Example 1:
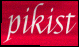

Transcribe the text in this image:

pikist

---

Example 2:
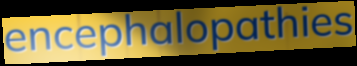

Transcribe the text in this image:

encephalopathies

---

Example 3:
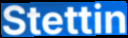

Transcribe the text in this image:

Stettin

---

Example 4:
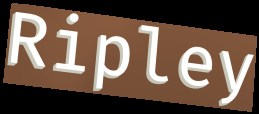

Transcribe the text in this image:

Ripley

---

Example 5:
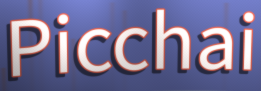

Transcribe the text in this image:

Picchai